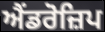
ਐਂਡਰੋਜ਼ਿਪ